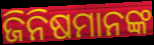
ଜିନିଷମାନଙ୍କ